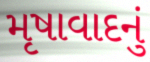
મૃષાવાદનું